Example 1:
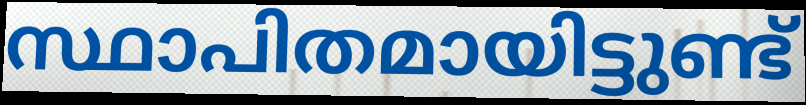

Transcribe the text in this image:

സ്ഥാപിതമായിട്ടുണ്ട്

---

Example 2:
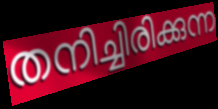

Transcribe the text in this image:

തനിച്ചിരിക്കുന്ന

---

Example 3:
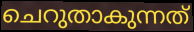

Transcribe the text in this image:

ചെറുതാകുന്നത്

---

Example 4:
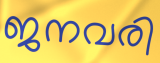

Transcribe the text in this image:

ജനവരി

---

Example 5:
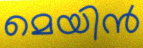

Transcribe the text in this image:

മെയിൻ